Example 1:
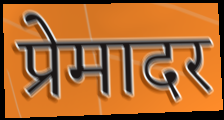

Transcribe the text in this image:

प्रेमादर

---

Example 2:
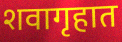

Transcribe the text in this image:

शवागृहात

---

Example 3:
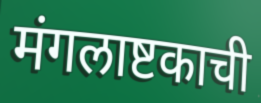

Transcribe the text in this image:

मंगलाष्टकाची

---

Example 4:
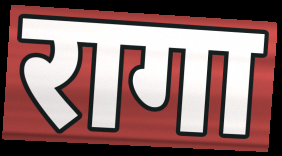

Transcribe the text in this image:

रागा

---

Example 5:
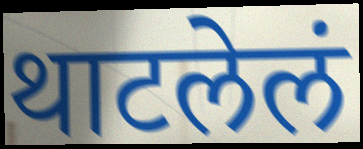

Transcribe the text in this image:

थाटलेलं